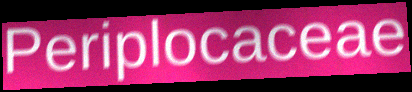
Periplocaceae